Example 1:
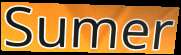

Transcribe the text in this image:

Sumer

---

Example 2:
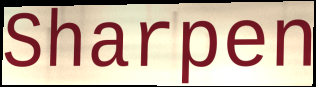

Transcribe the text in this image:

Sharpen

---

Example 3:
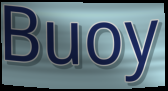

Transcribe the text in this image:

Buoy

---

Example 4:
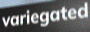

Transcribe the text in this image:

variegated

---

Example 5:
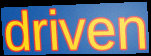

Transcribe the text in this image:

driven